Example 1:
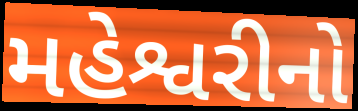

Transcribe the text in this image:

મહેશ્વરીનો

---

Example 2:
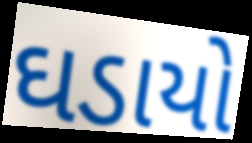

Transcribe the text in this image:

ઘડાયો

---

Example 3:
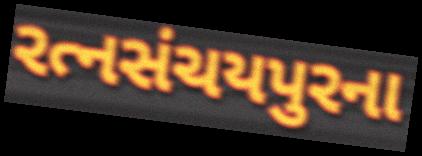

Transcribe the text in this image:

રત્નસંચયપુરના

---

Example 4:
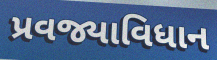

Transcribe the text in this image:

પ્રવજ્યાવિધાન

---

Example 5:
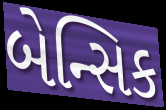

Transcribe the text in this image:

બેન્સિક